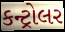
કન્ટ્રોલર